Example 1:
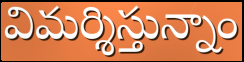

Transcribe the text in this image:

విమర్శిస్తున్నాం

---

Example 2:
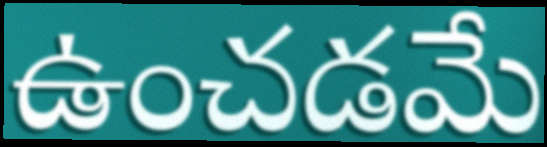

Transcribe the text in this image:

ఉంచడమే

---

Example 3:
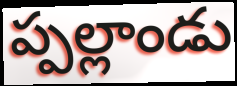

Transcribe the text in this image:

ప్పల్లాండు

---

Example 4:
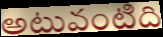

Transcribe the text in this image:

అటువంటిది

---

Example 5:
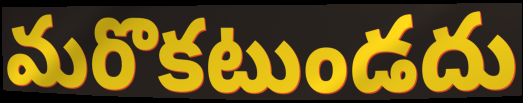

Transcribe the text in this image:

మరొకటుండదు